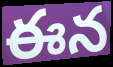
ఈన